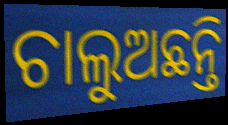
ଚାଲୁଅଛନ୍ତି